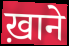
ख़ाने